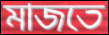
মাজতে